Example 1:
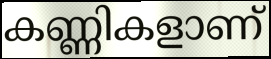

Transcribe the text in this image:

കണ്ണികളാണ്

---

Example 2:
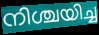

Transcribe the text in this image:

നിശ്ചയിച്ച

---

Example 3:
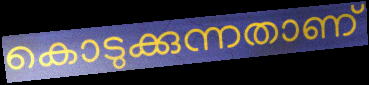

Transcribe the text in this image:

കൊടുക്കുന്നതാണ്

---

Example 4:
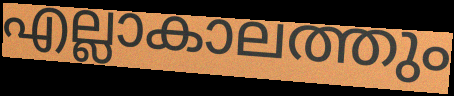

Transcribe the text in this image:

എല്ലാകാലത്തും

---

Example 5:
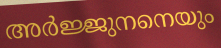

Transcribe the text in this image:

അർജ്ജുനനെയും